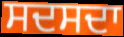
ਸਦਸਦਾ